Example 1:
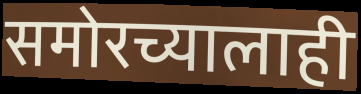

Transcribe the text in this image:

समोरच्यालाही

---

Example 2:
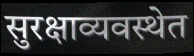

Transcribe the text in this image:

सुरक्षाव्यवस्थेत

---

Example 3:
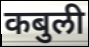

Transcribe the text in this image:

कबुली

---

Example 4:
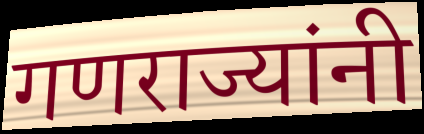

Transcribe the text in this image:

गणराज्यांनी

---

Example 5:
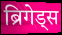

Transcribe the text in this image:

ब्रिगेड्स